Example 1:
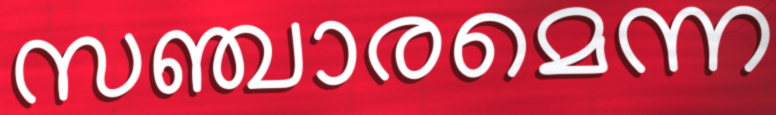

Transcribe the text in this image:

സഞ്ചാരമെന്ന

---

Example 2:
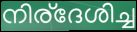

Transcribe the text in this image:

നിര്ദേശിച്ച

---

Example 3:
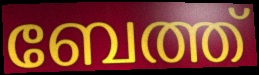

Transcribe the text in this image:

ബേത്ത്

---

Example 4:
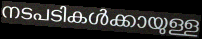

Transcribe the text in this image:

നടപടികൾക്കായുള്ള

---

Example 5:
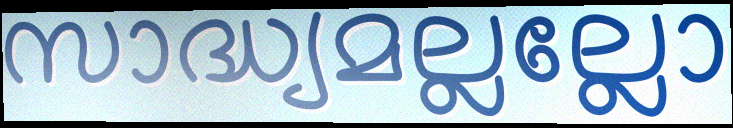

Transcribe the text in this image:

സാദ്ധ്യമല്ലല്ലോ